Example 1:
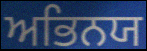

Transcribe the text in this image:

ਅਭਿਨਯ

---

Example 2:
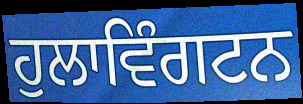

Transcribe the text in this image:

ਹੁਲਾਵਿੰਗਟਨ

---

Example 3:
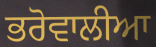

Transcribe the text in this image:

ਭਰੋਵਾਲੀਆ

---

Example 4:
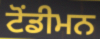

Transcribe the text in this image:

ਟੋਂਡੀਮਨ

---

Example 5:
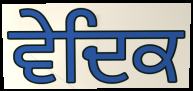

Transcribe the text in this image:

ਵੇਦਿਕ